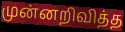
முன்னறிவித்த